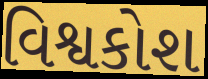
વિશ્વકોશ